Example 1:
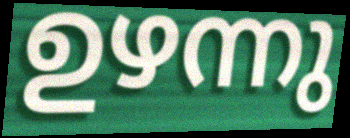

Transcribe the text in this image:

ഉഴന്നു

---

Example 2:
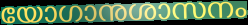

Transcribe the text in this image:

യോഗാനുശാസനം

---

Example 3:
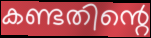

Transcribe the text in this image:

കണ്ടതിന്റെ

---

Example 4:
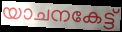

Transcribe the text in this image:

യാചനകേട്ട്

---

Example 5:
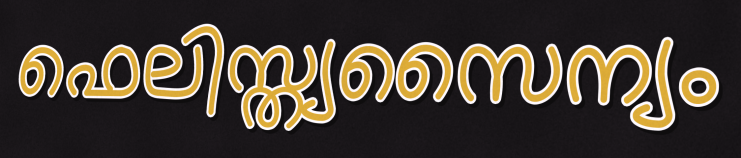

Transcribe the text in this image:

ഫെലിസ്ത്യസൈന്യം